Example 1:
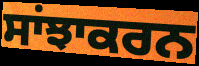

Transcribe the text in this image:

ਸਾਂਝਾਕਰਨ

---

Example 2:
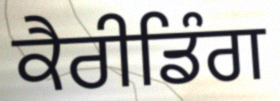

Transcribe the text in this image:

ਕੈਰੀਡਿੰਗ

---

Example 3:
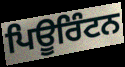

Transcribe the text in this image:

ਪਿਊਰਿੰਟਨ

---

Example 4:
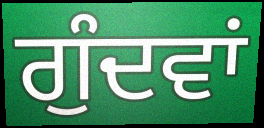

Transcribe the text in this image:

ਗੁੰਦਵਾਂ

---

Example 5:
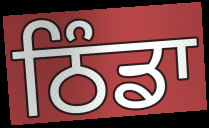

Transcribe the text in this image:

ਠਿੰਡਾ